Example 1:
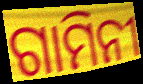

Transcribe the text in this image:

ଗାମିନୀ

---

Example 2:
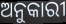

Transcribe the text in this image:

ଅନୁକାରୀ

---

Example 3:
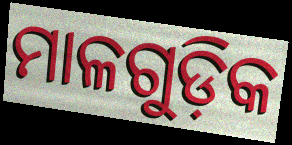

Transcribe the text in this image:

ମାଳଗୁଡ଼ିକ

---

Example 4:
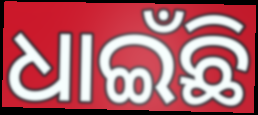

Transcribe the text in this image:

ଧାଇଁଛି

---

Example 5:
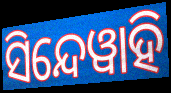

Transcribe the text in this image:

ସିନ୍ଦେୱାହି